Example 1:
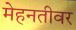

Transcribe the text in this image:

मेहनतीवर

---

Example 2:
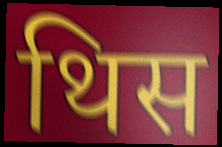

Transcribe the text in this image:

थिस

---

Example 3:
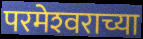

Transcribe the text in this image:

परमेश्‍वराच्या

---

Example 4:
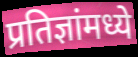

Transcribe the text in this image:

प्रतिज्ञांमध्ये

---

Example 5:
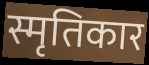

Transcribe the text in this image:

स्मृतिकार